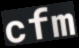
cfm